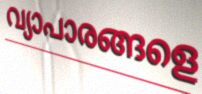
വ്യാപാരങ്ങളെ